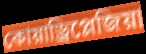
কোয়াড্রিপ্লেজিয়া